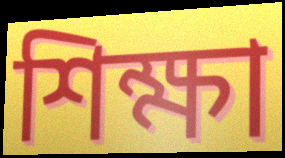
শিক্ষা